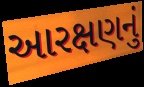
આરક્ષણનું